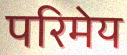
परिमेय